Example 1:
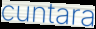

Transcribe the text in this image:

cuntara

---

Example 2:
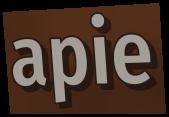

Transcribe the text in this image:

apie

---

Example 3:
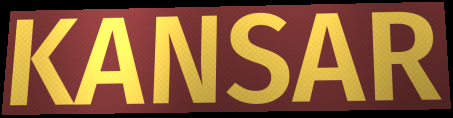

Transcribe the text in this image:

KANSAR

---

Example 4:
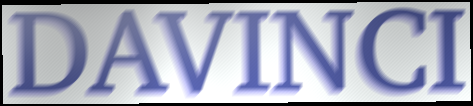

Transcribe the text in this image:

DAVINCI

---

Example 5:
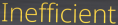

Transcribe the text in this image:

Inefficient